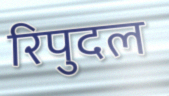
रिपुदल